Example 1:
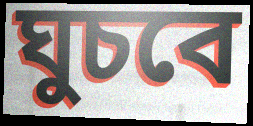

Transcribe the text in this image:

ঘুচবে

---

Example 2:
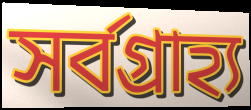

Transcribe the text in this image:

সর্বগ্রাহ্য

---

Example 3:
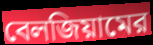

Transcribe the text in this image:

বেলজিয়ামের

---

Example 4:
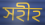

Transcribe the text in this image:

সহীহ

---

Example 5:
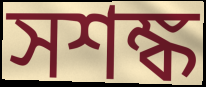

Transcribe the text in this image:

সশঙ্ক